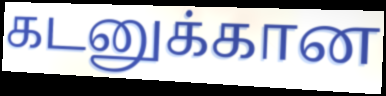
கடனுக்கான